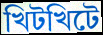
খিটখিটে